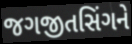
જગજીતસિંગને